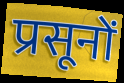
प्रसूनों